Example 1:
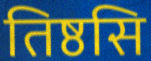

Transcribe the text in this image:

तिष्ठसि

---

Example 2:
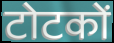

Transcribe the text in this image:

टोटकों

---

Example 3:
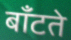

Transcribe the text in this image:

बाँटते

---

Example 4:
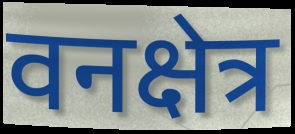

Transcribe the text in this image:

वनक्षेत्र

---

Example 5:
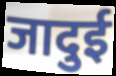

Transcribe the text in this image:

जादुई